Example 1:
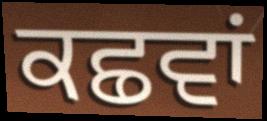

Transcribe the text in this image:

ਕਛਵਾਂ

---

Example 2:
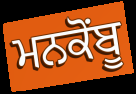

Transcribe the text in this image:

ਮਨਕੋਂਬੂ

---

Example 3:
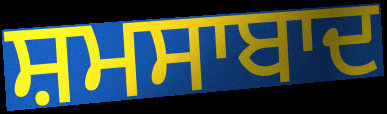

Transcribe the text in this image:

ਸ਼ਮਸਾਬਾਦ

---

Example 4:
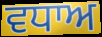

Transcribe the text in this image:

ਵਧਾਅ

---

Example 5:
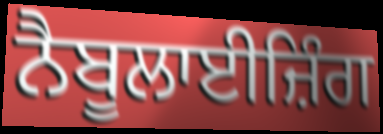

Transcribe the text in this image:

ਨੈਬੂਲਾਈਜ਼ਿੰਗ